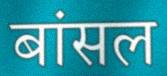
बांसल